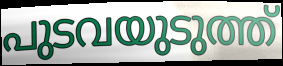
പുടവയുടുത്ത്